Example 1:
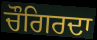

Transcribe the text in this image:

ਚੌਗਿਰਦਾ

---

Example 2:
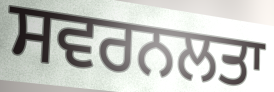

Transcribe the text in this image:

ਸਵਰਨਲਤਾ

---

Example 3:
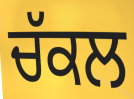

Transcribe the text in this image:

ਚੱਕਲ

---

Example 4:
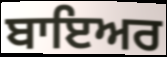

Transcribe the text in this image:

ਬਾਇਅਰ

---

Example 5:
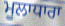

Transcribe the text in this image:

ਮੂਲਾਧਾਰਾ